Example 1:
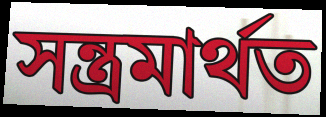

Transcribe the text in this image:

সন্ত্ৰমাৰ্থত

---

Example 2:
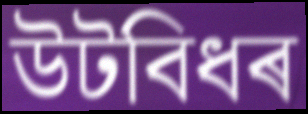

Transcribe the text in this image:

উটবিধৰ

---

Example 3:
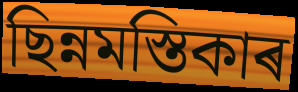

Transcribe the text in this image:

ছিন্নমস্তিকাৰ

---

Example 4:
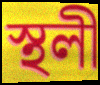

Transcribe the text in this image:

স্থলী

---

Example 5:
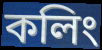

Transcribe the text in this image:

কলিং